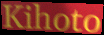
Kihoto